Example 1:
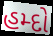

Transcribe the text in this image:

હમ્દો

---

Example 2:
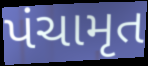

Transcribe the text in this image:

પંચામૃત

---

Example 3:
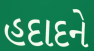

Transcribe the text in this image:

હદાદને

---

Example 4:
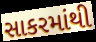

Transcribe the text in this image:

સાકરમાંથી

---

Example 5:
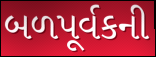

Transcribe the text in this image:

બળપૂર્વકની